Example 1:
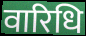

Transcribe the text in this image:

वारिधि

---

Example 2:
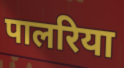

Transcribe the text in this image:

पालरिया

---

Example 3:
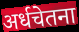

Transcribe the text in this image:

अर्धचेतना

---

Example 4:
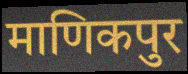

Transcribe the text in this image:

माणिकपुर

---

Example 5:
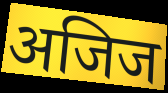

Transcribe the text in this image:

अजिज